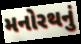
મનોરથનું